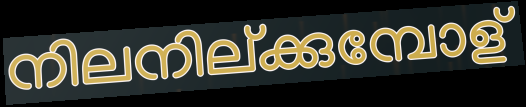
നിലനില്ക്കുമ്പോള്